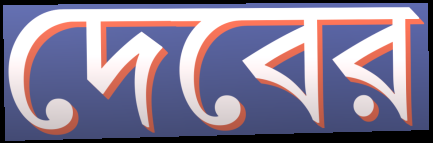
দেবের